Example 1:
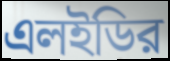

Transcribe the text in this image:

এলইডির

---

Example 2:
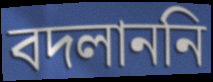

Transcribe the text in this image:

বদলাননি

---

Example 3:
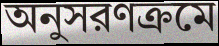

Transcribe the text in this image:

অনুসরণক্রমে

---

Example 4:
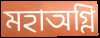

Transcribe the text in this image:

মহাঅগ্নি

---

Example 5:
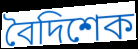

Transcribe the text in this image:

বৈদিশেক